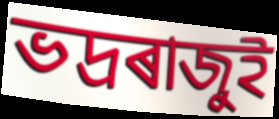
ভদ্ৰৰাজুই